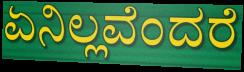
ಏನಿಲ್ಲವೆಂದರೆ